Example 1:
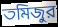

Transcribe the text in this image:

তমিজুর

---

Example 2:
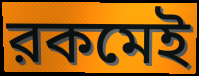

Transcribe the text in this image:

রকমেই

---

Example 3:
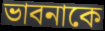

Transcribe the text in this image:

ভাবনাকে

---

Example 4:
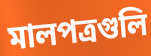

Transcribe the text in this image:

মালপত্রগুলি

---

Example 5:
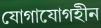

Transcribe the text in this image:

যোগাযোগহীন